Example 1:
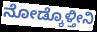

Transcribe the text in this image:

ನೋಡ್ಕೊಳ್ತೀನಿ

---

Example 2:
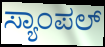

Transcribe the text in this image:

ಸ್ಯಾಂಪಲ್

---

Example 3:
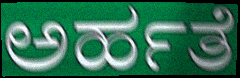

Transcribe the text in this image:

ಅರ್ಹತೆ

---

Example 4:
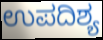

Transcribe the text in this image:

ಉಪದಿಶ್ಯ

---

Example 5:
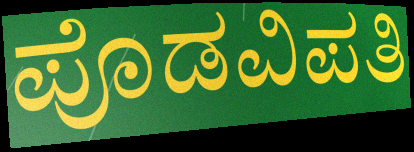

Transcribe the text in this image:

ಪೊಡವಿಪತಿ